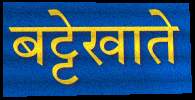
बट्टेखाते